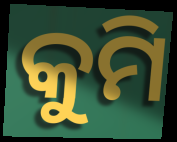
କୁମି